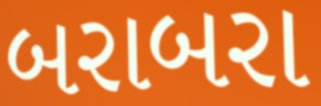
બરાબરા